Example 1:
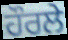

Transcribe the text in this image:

ਹੌਰਲੇ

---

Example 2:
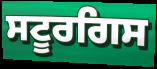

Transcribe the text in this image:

ਸਟੂਰਗਿਸ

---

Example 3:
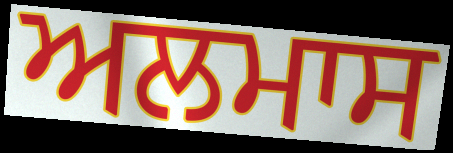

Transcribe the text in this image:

ਅਲਮਾਸ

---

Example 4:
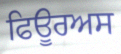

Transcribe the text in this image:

ਫਿਊਰਅਸ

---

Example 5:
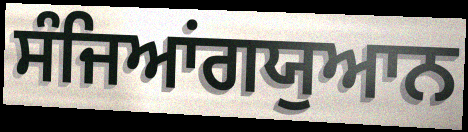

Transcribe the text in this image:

ਸੰਜਿਆਂਗਯੁਆਨ